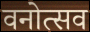
वनोत्सव